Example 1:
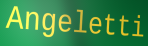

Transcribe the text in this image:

Angeletti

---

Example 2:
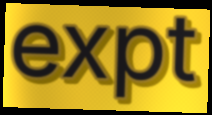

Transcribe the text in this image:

expt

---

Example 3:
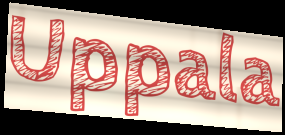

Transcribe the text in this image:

Uppala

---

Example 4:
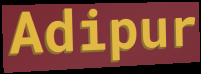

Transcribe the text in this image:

Adipur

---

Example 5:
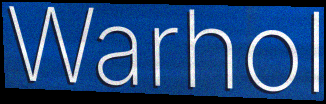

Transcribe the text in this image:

Warhol